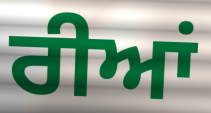
ਰੀਆਂ